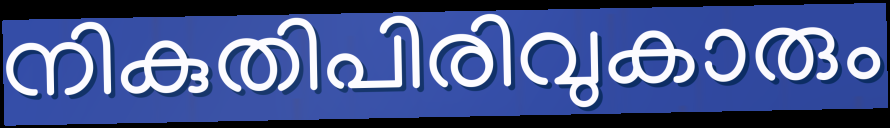
നികുതിപിരിവുകാരും